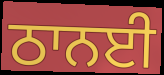
ਠਾਨਈ